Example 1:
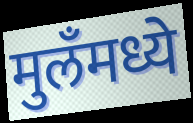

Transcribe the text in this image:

मुलँमध्ये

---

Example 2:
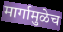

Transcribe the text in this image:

मार्गामुळेच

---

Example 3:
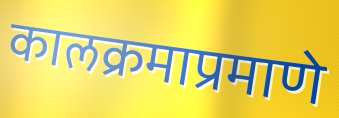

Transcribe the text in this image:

कालक्रमाप्रमाणे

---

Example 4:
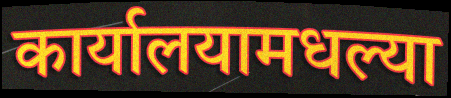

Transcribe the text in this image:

कार्यालयामधल्या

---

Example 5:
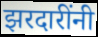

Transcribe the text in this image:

झरदारींनी